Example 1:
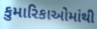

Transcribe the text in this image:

કુમારિકાઓમાંથી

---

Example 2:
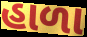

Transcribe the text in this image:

હાળા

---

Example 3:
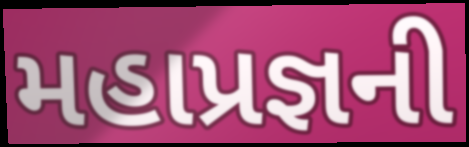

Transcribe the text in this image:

મહાપ્રજ્ઞની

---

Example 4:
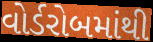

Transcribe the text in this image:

વોર્ડરોબમાંથી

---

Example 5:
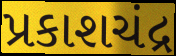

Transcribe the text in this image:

પ્રકાશચંદ્ર